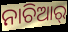
ନାଚିଆର୍